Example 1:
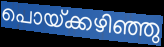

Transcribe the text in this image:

പൊയ്‌ക്കഴിഞ്ഞു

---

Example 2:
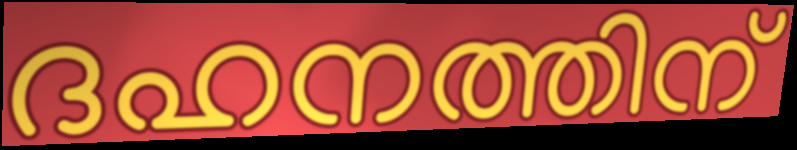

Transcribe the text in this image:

ദഹനത്തിന്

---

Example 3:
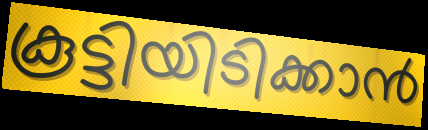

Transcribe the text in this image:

കൂട്ടിയിടിക്കാൻ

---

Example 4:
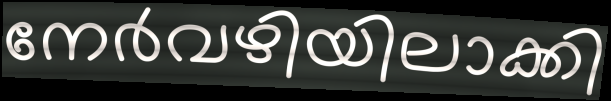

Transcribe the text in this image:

നേർവഴിയിലാക്കി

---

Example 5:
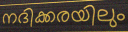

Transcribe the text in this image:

നദിക്കരയിലും